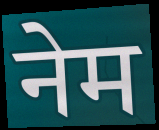
नेम